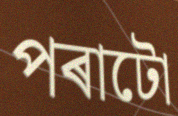
পৰাটো